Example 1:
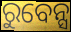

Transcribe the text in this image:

ରୁବେନ୍ସ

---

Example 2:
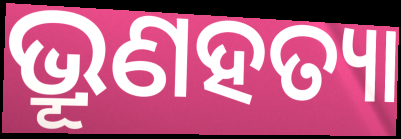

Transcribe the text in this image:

ଭ୍ରୂଣହତ୍ୟା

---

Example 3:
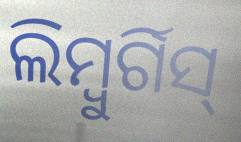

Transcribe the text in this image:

ଲିମ୍ବୁର୍ଗିସ୍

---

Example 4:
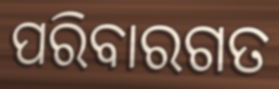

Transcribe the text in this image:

ପରିବାରଗତ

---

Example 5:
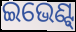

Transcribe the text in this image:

ଇଭେଣ୍ଟ୍